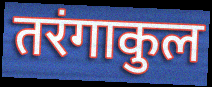
तरंगाकुल